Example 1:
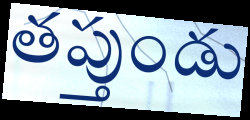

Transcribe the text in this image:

తప్తుండు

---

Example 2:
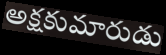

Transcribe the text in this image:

అక్షకుమారుడు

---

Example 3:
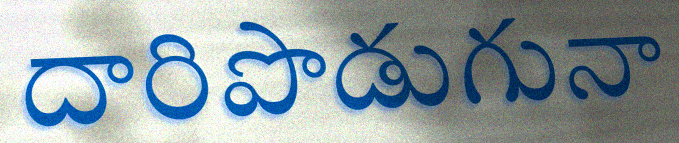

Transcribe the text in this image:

దారిపొడుగునా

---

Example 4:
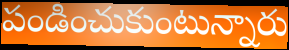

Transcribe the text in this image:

పండించుకుంటున్నారు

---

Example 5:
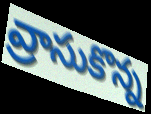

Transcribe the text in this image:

వ్రాసుకొన్న